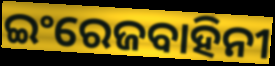
ଇଂରେଜବାହିନୀ